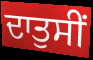
ਦਾਤੁਸੀਂ